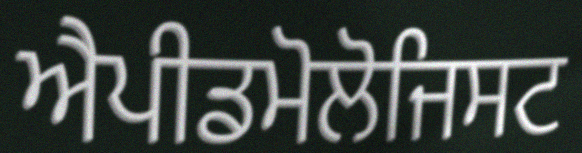
ਐਪੀਡਮੋਲੋਜਿਸਟ